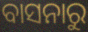
ବାସନାରୁ